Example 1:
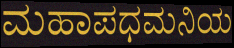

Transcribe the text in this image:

ಮಹಾಪಧಮನಿಯ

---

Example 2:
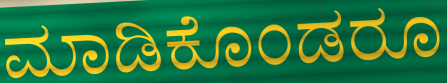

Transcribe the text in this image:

ಮಾಡಿಕೊಂಡರೂ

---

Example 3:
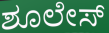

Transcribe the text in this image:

ಶೂಲೇಸ್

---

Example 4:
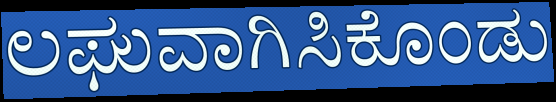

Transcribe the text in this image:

ಲಘುವಾಗಿಸಿಕೊಂಡು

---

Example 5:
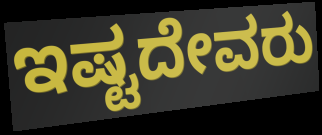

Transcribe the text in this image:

ಇಷ್ಟದೇವರು